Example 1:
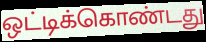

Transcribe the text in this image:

ஒட்டிக்கொண்டது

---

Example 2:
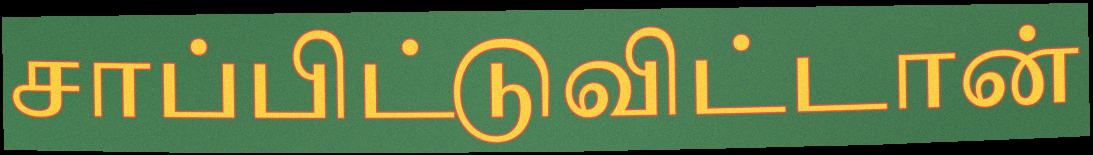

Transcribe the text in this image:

சாப்பிட்டுவிட்டான்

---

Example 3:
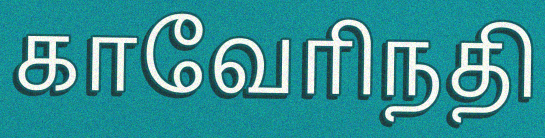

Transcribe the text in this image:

காவேரிநதி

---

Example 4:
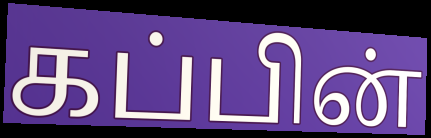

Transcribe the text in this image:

கப்பின்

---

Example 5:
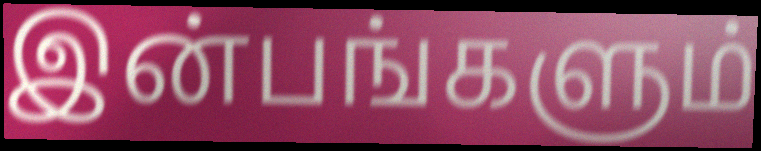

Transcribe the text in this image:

இன்பங்களும்